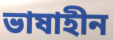
ভাষাহীন